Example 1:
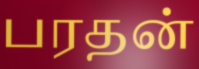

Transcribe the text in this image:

பரதன்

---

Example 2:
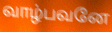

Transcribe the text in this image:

வாழ்பவனே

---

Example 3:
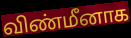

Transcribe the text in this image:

விண்மீனாக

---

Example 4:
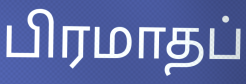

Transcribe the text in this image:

பிரமாதப்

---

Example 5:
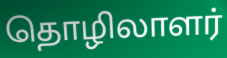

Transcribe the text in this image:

தொழிலாளர்